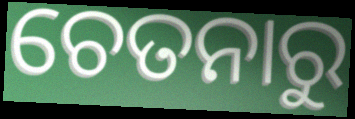
ଚେତନାରୁ